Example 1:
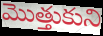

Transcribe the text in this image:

మొత్తుకుని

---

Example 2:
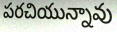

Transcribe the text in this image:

పరచియున్నావు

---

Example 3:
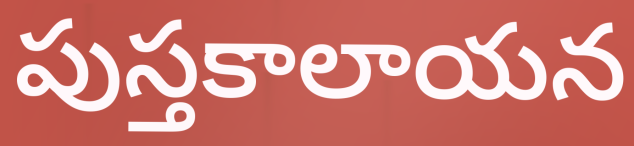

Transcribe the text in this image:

పుస్తకాలాయన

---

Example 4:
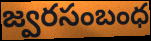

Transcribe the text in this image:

జ్వరసంబంధ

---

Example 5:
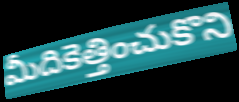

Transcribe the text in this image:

మీదికెత్తించుకొని